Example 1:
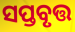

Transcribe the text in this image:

ସପ୍ତବୃତ୍ତ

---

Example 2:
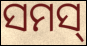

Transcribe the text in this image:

ସମସ୍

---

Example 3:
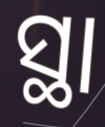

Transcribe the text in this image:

ସ୍ଥା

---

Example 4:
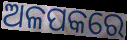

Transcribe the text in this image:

ଅଳପକରେ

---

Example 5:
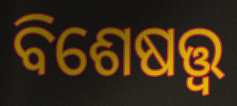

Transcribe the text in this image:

ବିଶେଷତ୍ତ୍ୱ